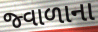
જ્વાળાના